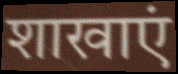
शाखाएं